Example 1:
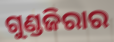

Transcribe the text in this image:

ଗୁଣ୍ଡଜିରାର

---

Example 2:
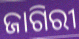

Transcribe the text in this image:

ଜାଗିରୀ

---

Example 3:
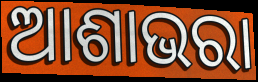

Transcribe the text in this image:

ଆଶାଭରା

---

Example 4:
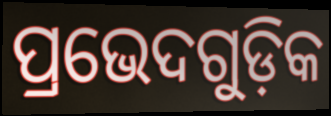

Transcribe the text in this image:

ପ୍ରଭେଦଗୁଡ଼ିକ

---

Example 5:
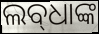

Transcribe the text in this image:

ଲବ୍‌ଧାଙ୍କ